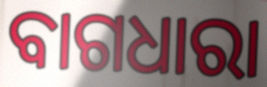
ବାଗଧାରା